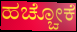
ಹಚ್ಚೋಕೆ